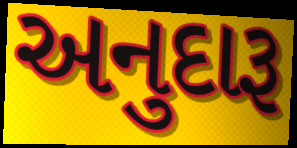
અનુદારૂ